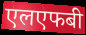
एलएफबी